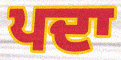
ਪਦਾ